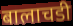
बालाचडी